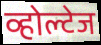
व्होल्टेज